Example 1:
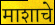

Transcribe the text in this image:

माशाचे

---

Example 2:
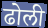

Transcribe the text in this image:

ढोली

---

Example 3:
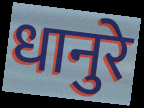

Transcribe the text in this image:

धानुरे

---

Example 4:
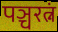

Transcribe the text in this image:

पञ्चरत्नं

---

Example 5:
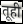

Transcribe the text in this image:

तूही